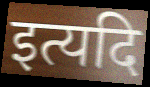
इत्यदि